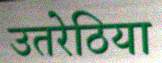
उतरेठिया